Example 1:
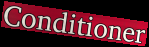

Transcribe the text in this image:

Conditioner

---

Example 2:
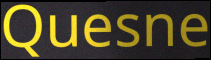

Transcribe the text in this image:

Quesne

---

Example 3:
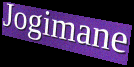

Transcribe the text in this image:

Jogimane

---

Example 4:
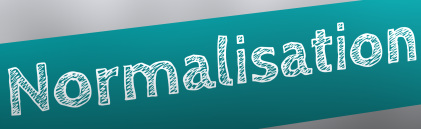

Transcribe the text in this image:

Normalisation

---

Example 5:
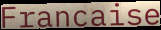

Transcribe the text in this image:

Francaise